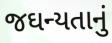
જઘન્યતાનું